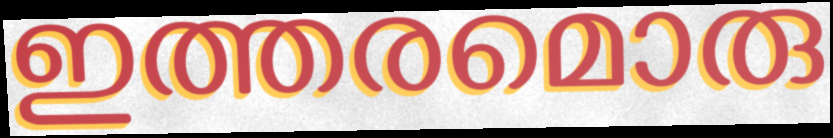
ഇത്തരമൊരു